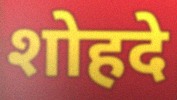
शोहदे